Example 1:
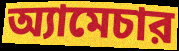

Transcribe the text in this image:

অ্যামেচার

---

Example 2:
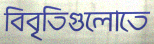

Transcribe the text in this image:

বিবৃতিগুলোতে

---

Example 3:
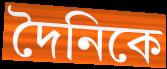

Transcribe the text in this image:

দৈনিকে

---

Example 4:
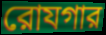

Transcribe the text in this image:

রোযগার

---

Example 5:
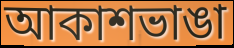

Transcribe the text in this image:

আকাশভাঙা